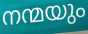
നന്മയും